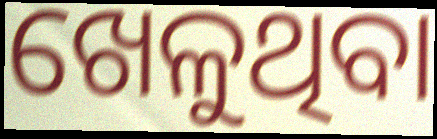
ଖେଳୁଥିବା